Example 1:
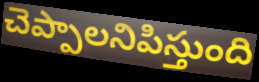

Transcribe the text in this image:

చెప్పాలనిపిస్తుంది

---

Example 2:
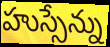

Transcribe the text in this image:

హుస్సేన్ను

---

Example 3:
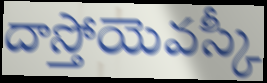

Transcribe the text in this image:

దాస్తోయెవస్కీ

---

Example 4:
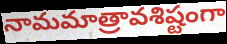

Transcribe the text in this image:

నామమాత్రావశిష్టంగా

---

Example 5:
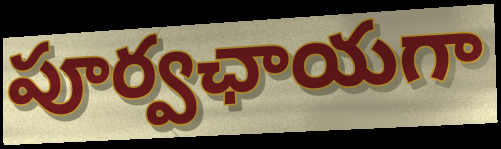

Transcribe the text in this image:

పూర్వఛాయగా